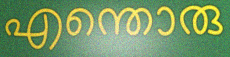
എന്തൊരു